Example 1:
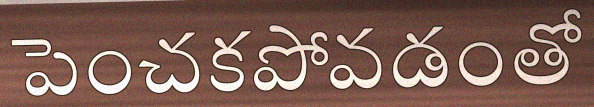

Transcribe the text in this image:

పెంచకపోవడంతో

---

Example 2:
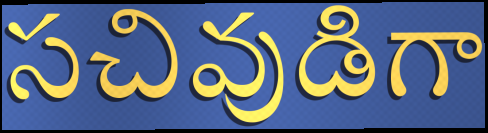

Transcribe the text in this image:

సచివుడిగా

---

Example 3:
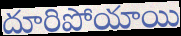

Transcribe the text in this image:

దూరిపోయాయి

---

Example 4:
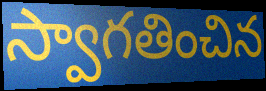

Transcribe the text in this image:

స్వాగతించిన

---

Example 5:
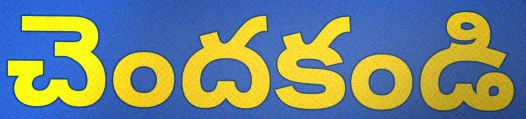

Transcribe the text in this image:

చెందకండి